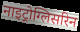
नाइट्रोग्लिसरिन